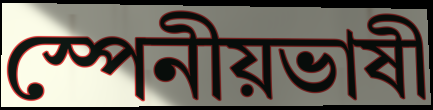
স্পেনীয়ভাষী